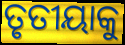
ତୃତୀୟାକୁ